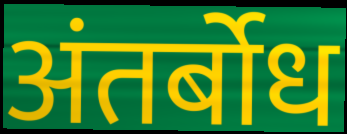
अंतर्बोध